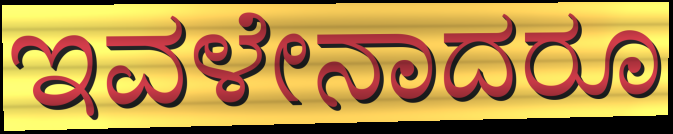
ಇವಳೇನಾದರೂ